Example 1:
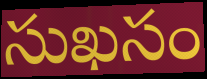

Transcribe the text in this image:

సుఖసం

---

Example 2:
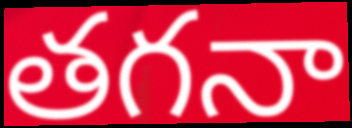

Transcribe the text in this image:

తగనా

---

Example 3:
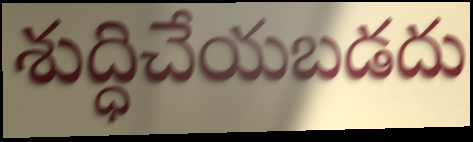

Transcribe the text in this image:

శుద్ధిచేయబడదు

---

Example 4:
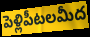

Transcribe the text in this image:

పెళ్లిపీటలమీద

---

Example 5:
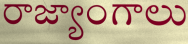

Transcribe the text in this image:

రాజ్యాంగాలు